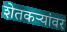
शेतकऱ्यांवर